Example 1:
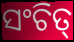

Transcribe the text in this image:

ସଂଚିତ୍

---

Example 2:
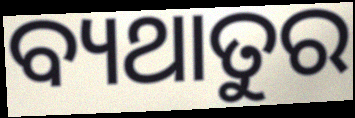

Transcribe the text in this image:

ବ୍ୟଥାତୁର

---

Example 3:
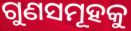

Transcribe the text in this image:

ଗୁଣସମୂହକୁ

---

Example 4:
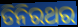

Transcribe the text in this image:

ତିନିରଥର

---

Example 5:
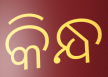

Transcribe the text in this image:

କିନ୍ଧ